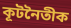
কূটনৈতীক